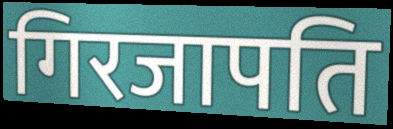
गिरजापति